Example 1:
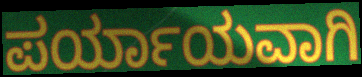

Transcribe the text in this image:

ಪರ್ಯಾಯವಾಗಿ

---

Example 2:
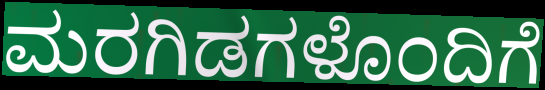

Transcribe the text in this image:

ಮರಗಿಡಗಳೊಂದಿಗೆ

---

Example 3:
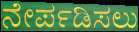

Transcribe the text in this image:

ನೇರ್ಪಡಿಸಲು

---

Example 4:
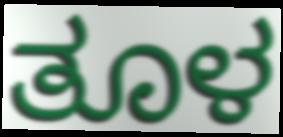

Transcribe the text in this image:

ತೂಳ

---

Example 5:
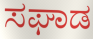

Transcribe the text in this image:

ಸಘಾಡ